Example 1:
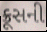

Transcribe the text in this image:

ક્રૂસની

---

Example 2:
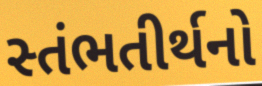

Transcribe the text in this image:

સ્તંભતીર્થનો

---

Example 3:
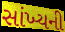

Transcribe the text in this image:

સાંખ્યની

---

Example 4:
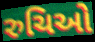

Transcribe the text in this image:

રુચિઓ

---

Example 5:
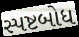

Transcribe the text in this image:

સ્પષ્ટબોધ